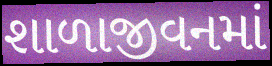
શાળાજીવનમાં